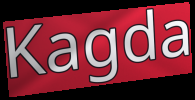
Kagda